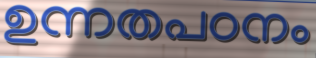
ഉന്നതപഠനം